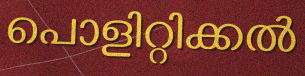
പൊളിറ്റിക്കൽ